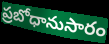
ప్రబోధానుసారం